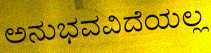
ಅನುಭವವಿದೆಯಲ್ಲ